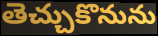
తెచ్చుకొనును